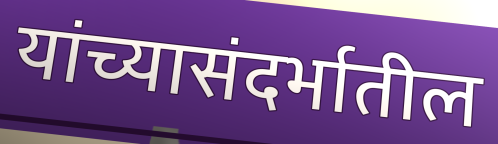
यांच्यासंदर्भातील